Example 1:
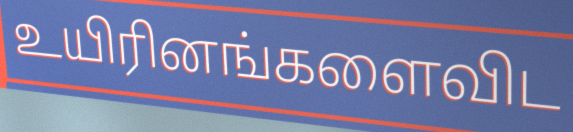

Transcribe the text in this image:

உயிரினங்களைவிட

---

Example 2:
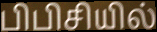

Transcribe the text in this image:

பிபிசியில்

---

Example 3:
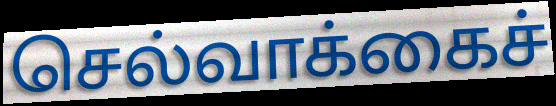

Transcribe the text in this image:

செல்வாக்கைச்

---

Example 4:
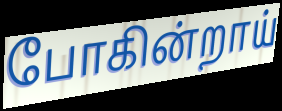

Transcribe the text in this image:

போகின்றாய்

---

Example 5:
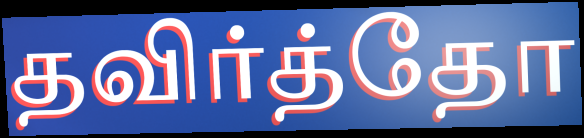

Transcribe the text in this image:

தவிர்த்தோ